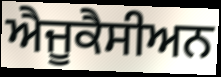
ਐਜੂਕੈਸੀਅਨ